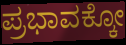
ಪ್ರಭಾವಕ್ಕೋ